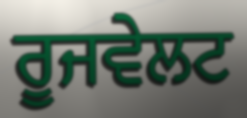
ਰੂਜਵੇਲਟ